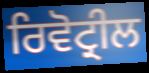
ਰਿਵੋਟ੍ਰੀਲ